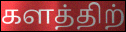
களத்திற்